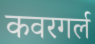
कवरगर्ल